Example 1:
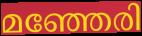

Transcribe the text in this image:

മഞ്ഞേരി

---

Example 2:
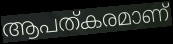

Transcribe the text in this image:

ആപത്കരമാണ്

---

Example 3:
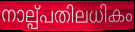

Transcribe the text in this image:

നാല്പ്പതിലധികം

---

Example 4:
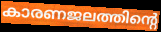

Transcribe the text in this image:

കാരണജലത്തിന്റെ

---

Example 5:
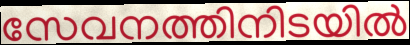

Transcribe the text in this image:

സേവനത്തിനിടയിൽ